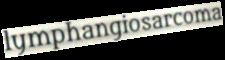
lymphangiosarcoma